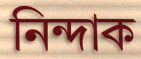
নিন্দাক